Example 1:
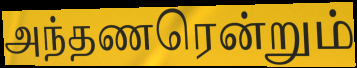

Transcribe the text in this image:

அந்தணரென்றும்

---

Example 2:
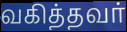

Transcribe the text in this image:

வகித்தவர்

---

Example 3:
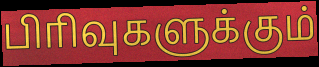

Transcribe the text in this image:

பிரிவுகளுக்கும்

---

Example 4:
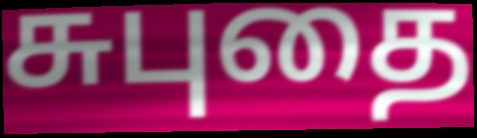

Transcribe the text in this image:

சுபுதை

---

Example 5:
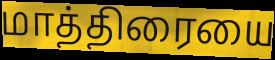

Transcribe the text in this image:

மாத்திரையை